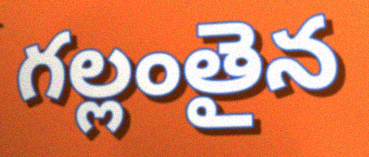
గల్లంతైన